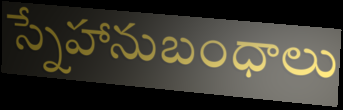
స్నేహానుబంధాలు